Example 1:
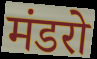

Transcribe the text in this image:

मंडरो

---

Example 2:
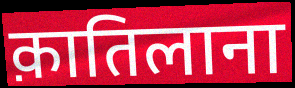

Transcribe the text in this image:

क़ातिलाना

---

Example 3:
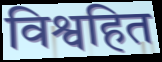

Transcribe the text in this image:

विश्वहित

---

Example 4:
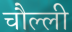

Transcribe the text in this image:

चौल्ली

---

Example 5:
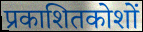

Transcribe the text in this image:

प्रकाशितकोशों